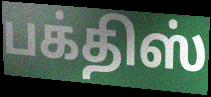
பக்திஸ்